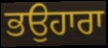
ਭਉਹਾਰਾ